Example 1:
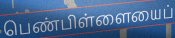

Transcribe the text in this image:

பெண்பிள்ளையைப்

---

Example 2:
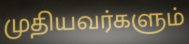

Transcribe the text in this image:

முதியவர்களும்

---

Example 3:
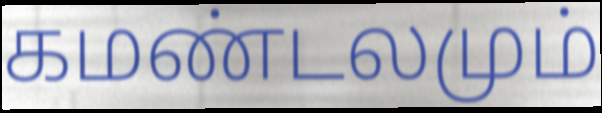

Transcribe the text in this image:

கமண்டலமும்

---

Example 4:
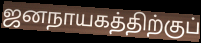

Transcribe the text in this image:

ஜனநாயகத்திற்குப்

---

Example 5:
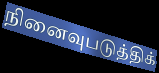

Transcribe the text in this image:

நினைவுபடுத்திக்